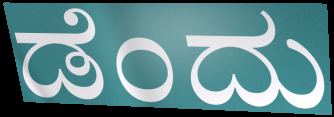
ಡೆಂದು